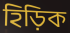
হিড়িক